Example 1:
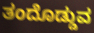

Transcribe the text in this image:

ತಂದೊಡ್ಡುವ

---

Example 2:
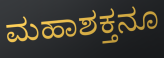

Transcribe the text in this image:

ಮಹಾಶಕ್ತನೂ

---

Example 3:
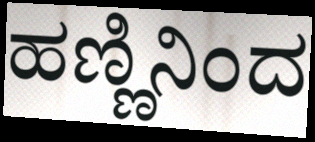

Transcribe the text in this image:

ಹಣ್ಣಿನಿಂದ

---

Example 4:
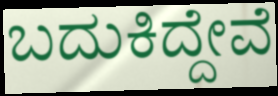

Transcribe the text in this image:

ಬದುಕಿದ್ದೇವೆ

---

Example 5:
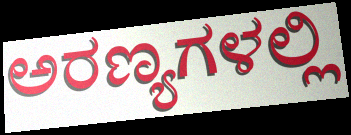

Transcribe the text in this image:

ಅರಣ್ಯಗಳಲ್ಲಿ